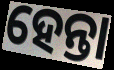
ହେନ୍ତା